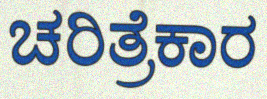
ಚರಿತ್ರೆಕಾರ